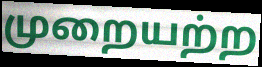
முறையற்ற